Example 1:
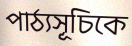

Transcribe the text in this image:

পাঠ্যসূচিকে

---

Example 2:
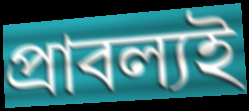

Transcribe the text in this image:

প্রাবল্যই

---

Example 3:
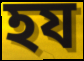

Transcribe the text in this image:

হয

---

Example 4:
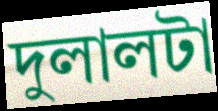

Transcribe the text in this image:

দুলালটা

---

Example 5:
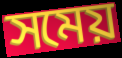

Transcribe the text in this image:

সমেয়